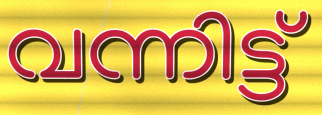
വന്നിട്ട്